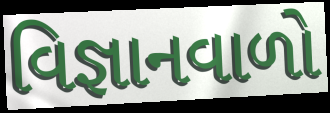
વિજ્ઞાનવાળો